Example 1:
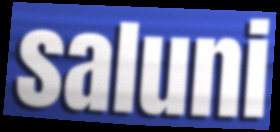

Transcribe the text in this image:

saluni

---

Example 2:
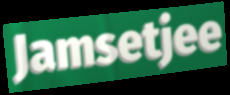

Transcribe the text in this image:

Jamsetjee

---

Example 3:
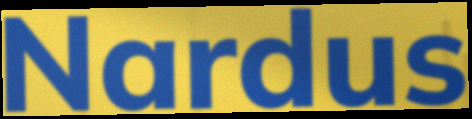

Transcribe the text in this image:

Nardus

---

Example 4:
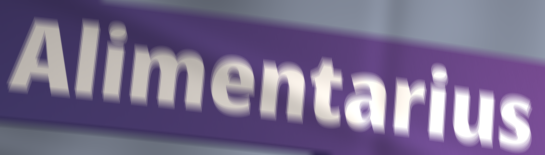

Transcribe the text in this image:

Alimentarius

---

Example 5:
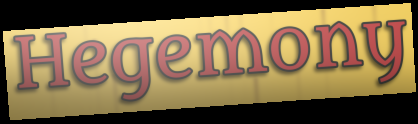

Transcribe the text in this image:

Hegemony